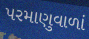
પરમાણુવાળાં